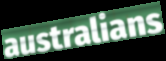
australians